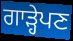
ਗਾੜ੍ਹੇਪਣ